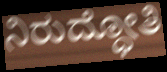
ನಿರುದ್ಧೋತಿ